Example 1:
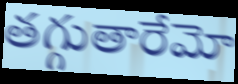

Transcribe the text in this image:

తగ్గుతారేమో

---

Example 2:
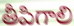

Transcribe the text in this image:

తీపిగాలి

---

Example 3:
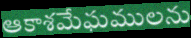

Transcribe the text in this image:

ఆకాశమేఘములను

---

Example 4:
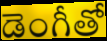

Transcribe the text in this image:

డెంగీతో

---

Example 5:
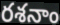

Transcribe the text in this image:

రశనాం